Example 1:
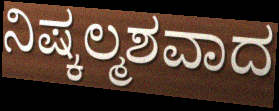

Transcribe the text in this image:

ನಿಷ್ಕಲ್ಮಶವಾದ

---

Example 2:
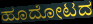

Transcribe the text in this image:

ಹೂದೋಟದ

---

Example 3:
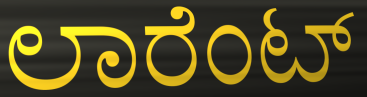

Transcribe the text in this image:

ಲಾರೆಂಟ್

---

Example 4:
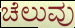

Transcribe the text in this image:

ಚೆಲುವು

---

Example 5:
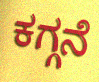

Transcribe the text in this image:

ಕಗ್ಗನೆ